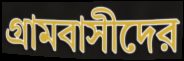
গ্রামবাসীদের